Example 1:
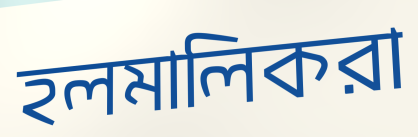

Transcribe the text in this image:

হলমালিকরা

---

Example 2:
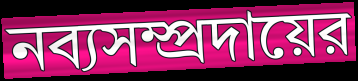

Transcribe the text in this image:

নব্যসম্প্রদায়ের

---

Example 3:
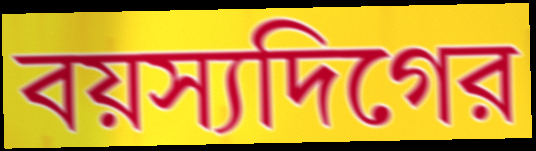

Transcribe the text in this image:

বয়স্যদিগের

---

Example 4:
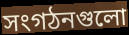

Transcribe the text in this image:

সংগঠনগুলো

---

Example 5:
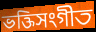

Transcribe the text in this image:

ভক্তিসংগীত